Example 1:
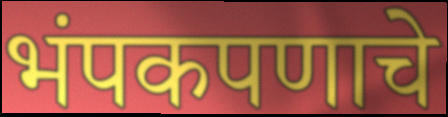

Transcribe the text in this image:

भंपकपणाचे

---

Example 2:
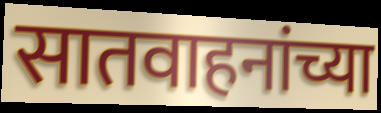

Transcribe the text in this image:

सातवाहनांच्या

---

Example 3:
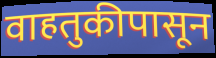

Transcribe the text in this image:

वाहतुकीपासून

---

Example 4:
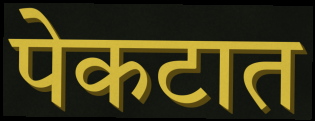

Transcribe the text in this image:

पेकटात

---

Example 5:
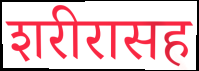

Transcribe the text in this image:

शरीरासह